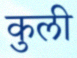
कुली